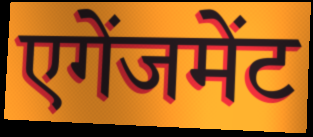
एगेंजमेंट